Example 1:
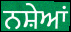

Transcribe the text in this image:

ਨਸ਼ੇਆਂ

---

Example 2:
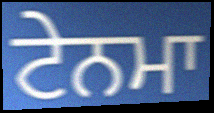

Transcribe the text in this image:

ਟੇਨਮਾ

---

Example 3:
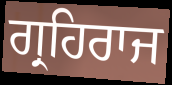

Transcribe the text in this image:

ਗ੍ਰਹਿਰਾਜ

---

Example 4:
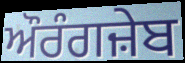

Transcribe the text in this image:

ਔਰੰਗਜ਼ੇਬ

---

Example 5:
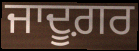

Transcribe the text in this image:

ਜਾਦੂਗ਼ਰ